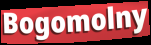
Bogomolny